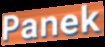
Panek